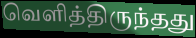
வெளித்திருந்தது